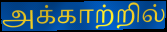
அக்காற்றில்